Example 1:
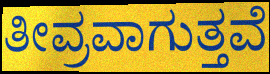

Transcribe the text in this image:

ತೀವ್ರವಾಗುತ್ತವೆ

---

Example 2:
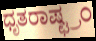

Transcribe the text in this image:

ಧೃತರಾಷ್ಟ್ರಂ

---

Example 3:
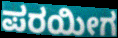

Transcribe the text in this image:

ಪರಯೀಗ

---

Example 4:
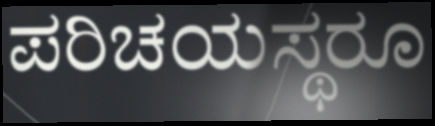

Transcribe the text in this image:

ಪರಿಚಯಸ್ಥರೂ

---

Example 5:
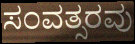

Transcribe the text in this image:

ಸಂವತ್ಸರವು